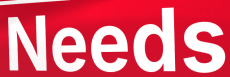
Needs